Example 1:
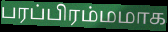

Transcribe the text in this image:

பரப்பிரம்மமாக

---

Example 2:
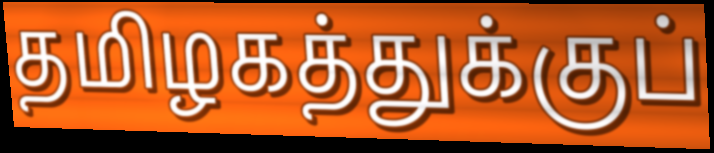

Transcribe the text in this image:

தமிழகத்துக்குப்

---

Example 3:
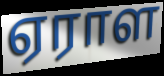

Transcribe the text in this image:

ஏராள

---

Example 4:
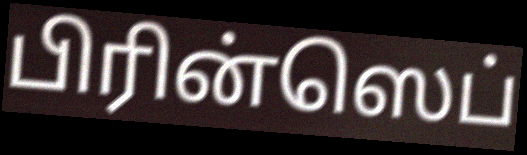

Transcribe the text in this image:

பிரின்ஸெப்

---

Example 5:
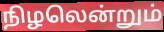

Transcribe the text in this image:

நிழலென்றும்